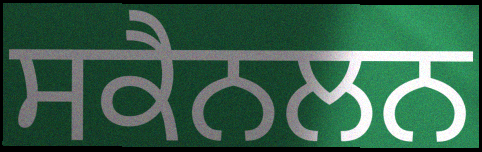
ਸਕੈਨਲਨ